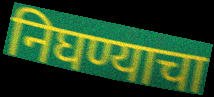
निघण्याचा